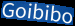
Goibibo